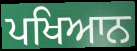
ਪਖਿਆਨ